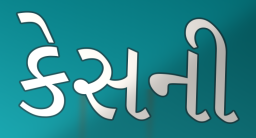
કેસની